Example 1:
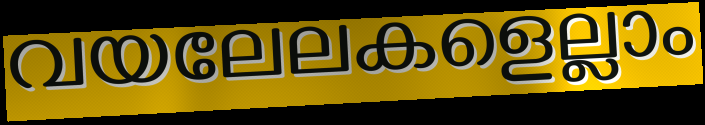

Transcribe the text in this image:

വയലേലകളെല്ലാം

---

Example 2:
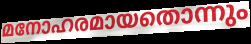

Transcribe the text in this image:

മനോഹരമായതൊന്നും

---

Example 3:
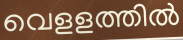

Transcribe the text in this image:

വെളളത്തിൽ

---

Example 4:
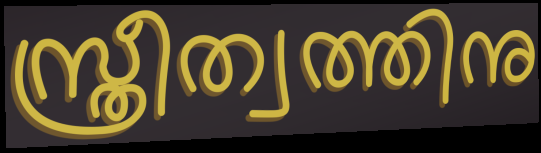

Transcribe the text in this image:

സ്ത്രീത്വത്തിനു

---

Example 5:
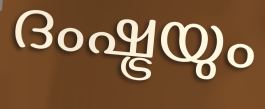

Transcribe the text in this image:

ദംഷ്ട്രയും